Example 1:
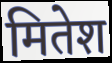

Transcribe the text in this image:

मितेश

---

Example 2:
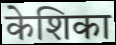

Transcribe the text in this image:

केशिका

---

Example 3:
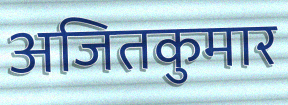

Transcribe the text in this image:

अजितकुमार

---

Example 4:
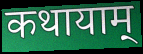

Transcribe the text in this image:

कथायाम्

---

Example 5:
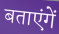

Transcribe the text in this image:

बताएंगें